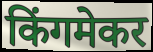
किंगमेकर